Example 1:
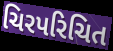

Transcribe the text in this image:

ચિરપરિચિત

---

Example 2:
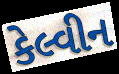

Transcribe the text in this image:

કેલ્વીન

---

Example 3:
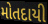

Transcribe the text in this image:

મોતદાયી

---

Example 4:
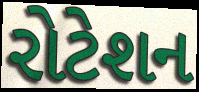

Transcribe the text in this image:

રોટેશન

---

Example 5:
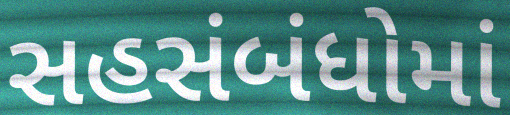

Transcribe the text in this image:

સહસંબંધોમાં